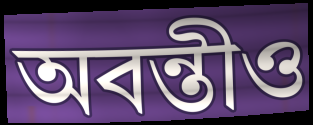
অবন্তীও